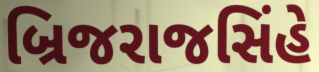
બ્રિજરાજસિંહે